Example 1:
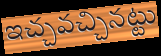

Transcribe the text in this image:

ఇచ్చవచ్చినట్టు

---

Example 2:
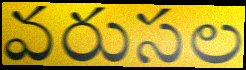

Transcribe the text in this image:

వరుసల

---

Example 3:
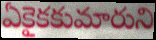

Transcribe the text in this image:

ఏకైకకుమారుని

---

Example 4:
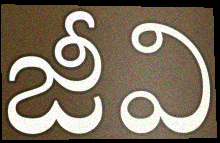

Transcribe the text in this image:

జీవి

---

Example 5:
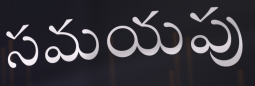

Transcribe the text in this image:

సమయపు